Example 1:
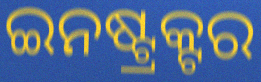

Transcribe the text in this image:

ଇନଷ୍ଟ୍ରକ୍ଟର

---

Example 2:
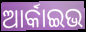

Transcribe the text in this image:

ଆର୍କାଇଭ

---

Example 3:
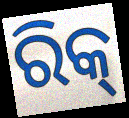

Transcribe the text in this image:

ରିକ୍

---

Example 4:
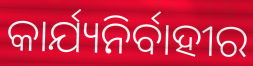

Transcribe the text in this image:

କାର୍ଯ୍ୟନିର୍ବାହୀର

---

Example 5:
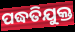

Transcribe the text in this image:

ପଦ୍ଧତିଯୁକ୍ତ